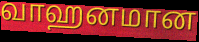
வாஹனமான